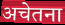
अचेतना